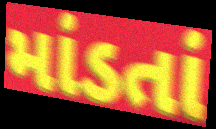
માંડતાં